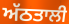
ਅੱਠਤਾਲੀ